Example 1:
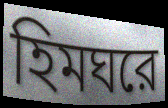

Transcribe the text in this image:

হিমঘরে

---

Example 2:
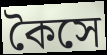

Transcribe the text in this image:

কৈসে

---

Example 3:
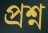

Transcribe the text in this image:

প্রশ্ন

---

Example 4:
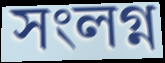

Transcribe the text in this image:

সংলগ্ন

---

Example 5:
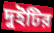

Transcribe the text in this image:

দুইটির